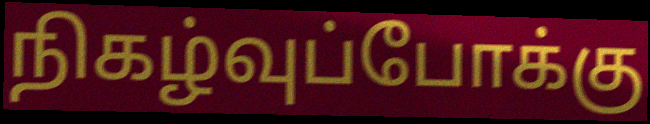
நிகழ்வுப்போக்கு